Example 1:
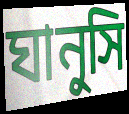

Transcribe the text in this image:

ঘানুসি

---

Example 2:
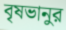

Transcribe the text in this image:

বৃষভানুর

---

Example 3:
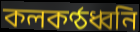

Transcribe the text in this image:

কলকণ্ঠধ্বনি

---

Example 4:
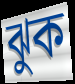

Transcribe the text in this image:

ঝুক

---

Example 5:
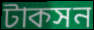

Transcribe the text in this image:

টাকসন